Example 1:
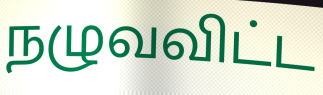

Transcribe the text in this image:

நழுவவிட்ட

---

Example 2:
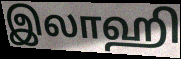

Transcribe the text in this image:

இலாஹி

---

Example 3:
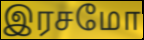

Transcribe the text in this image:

இரசமோ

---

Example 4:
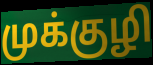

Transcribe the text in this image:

முக்குழி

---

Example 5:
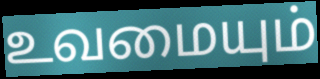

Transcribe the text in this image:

உவமையும்